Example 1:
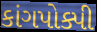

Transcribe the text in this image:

કાંગપોક્પી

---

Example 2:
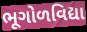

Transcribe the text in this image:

ભૂગોળવિદ્યા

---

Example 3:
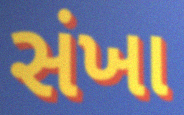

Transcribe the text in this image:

સંખા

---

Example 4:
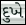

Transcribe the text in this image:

દુખે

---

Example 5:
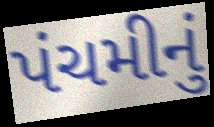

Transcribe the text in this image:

પંચમીનું